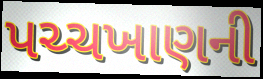
પચ્ચખાણની